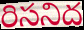
రిసనిద